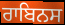
ਰਾਬਿਨਸ